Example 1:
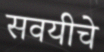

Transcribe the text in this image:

सवयीचे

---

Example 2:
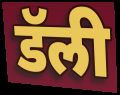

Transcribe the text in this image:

डॅली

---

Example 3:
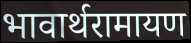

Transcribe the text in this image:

भावार्थरामायण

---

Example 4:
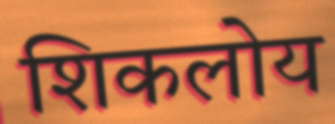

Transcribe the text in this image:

शिकलोय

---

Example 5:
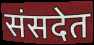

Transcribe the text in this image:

संसदेत